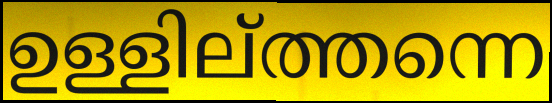
ഉള്ളില്ത്തന്നെ